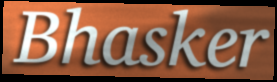
Bhasker